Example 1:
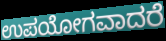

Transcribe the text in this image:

ಉಪಯೋಗವಾದರೆ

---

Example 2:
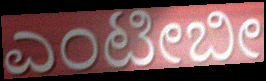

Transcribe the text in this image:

ಎಂಟೀಬೀ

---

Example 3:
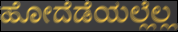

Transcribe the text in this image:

ಹೋದೆಡೆಯಲ್ಲೆಲ್ಲ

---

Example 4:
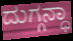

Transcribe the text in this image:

ದುಗ್ಗನ್ಧಾ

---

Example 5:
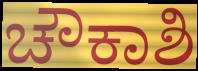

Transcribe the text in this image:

ಚೌಕಾಶಿ